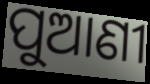
ପୁଆଣୀ